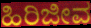
ಹಿರಿಜೀವ